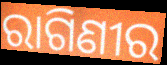
ରାଗିଣୀର